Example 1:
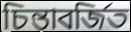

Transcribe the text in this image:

চিন্তাবর্জিত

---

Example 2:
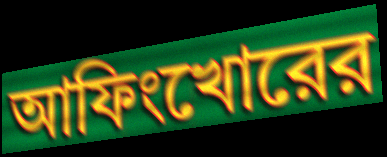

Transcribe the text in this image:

আফিংখোরের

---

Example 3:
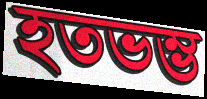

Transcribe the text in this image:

হতভম্ভ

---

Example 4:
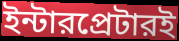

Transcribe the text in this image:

ইন্টারপ্রেটারই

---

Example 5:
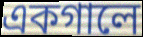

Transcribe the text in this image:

একগালে